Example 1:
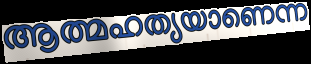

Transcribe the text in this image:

ആത്മഹത്യയാണെന്ന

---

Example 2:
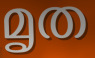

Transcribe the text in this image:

മൃത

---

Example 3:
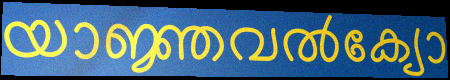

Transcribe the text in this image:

യാജ്ഞവൽക്യോ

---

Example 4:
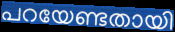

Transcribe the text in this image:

പറയേണ്ടതായി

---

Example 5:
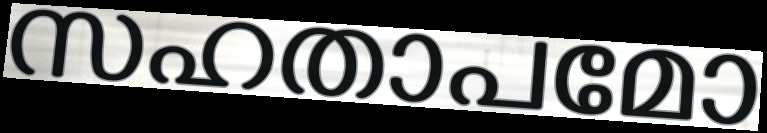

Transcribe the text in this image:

സഹതാപമോ